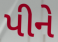
પીને